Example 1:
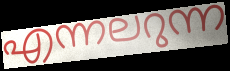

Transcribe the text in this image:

എന്നലറുന്ന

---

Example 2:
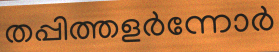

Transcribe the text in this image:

തപ്പിത്തളർന്നോർ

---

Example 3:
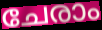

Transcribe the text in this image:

ചേരാം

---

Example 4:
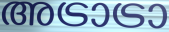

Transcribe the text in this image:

അട്രാട്രാ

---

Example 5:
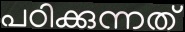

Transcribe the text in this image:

പഠിക്കുന്നത്